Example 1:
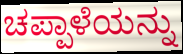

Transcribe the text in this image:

ಚಪ್ಪಾಳೆಯನ್ನು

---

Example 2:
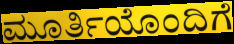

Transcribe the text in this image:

ಮೂರ್ತಿಯೊಂದಿಗೆ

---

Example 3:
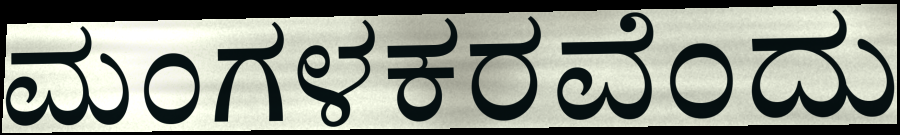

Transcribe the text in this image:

ಮಂಗಳಕರವೆಂದು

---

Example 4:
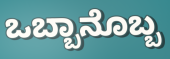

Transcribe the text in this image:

ಒಬ್ಬಾನೊಬ್ಬ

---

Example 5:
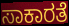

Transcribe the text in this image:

ಸಾಕಾರತೆ